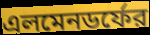
এলমেনডর্ফের